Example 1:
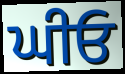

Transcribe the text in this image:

ਘੀਓ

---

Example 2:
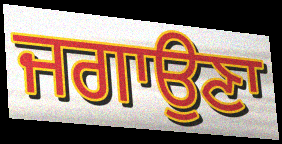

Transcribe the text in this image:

ਜਗਾਉਣਾ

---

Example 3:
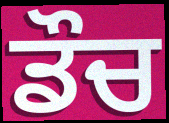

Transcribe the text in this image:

ਡੌਚ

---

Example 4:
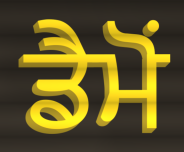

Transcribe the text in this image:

ਡੈਮੋਂ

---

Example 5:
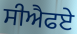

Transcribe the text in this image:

ਸੀਐਫਏ